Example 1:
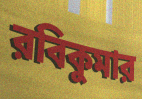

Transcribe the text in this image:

রবিকুমার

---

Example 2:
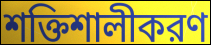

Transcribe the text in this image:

শক্তিশালীকরণ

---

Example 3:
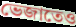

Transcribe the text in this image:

ভেজাতেও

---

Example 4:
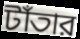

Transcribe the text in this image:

টাঁতার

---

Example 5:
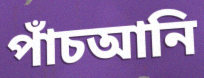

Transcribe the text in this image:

পাঁচআনি